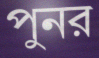
পুনর